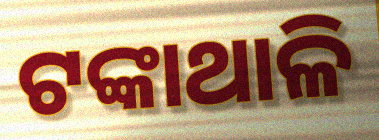
ଟଙ୍କାଥାଳି